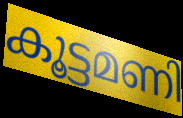
കൂട്ടമണി